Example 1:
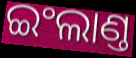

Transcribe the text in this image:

ଇଂଲାଣ୍ତ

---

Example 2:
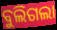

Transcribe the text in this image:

ବୁଲିଗଲା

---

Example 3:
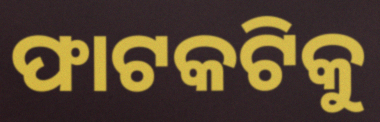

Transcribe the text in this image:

ଫାଟକଟିକୁ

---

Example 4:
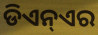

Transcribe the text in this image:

ଡିଏନ୍ଏର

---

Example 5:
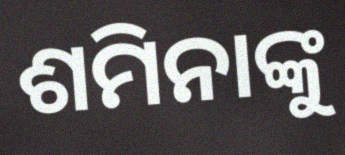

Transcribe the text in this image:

ଶମିନାଙ୍କୁ